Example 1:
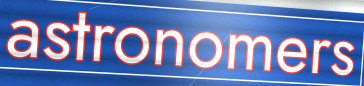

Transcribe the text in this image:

astronomers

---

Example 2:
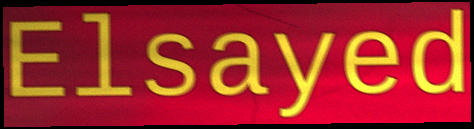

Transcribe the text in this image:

Elsayed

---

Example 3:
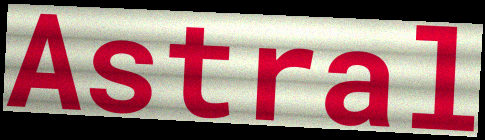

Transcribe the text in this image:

Astral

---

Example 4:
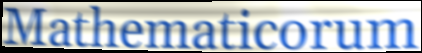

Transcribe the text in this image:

Mathematicorum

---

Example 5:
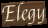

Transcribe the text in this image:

Elegy